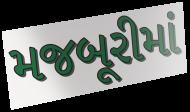
મજબૂરીમાં